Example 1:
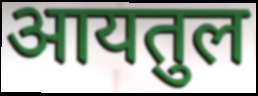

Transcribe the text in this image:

आयतुल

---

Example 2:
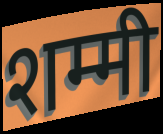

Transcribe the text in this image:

शम्मी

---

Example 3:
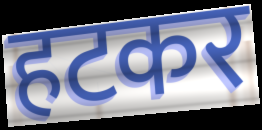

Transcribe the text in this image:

हटकर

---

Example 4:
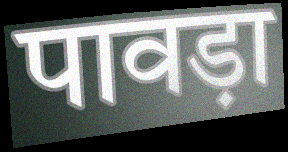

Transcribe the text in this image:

पावड़ा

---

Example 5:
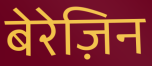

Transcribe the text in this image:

बेरेज़िन